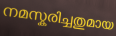
നമസ്കരിച്ചതുമായ